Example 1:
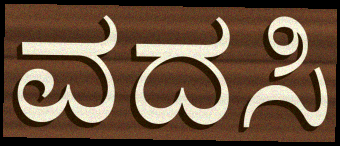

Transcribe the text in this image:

ವದಸಿ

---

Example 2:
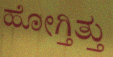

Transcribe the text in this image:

ಹೋಗ್ತಿತ್ತು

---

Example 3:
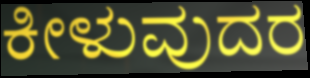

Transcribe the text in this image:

ಕೀಳುವುದರ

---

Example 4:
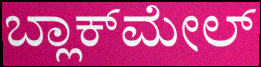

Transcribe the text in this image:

ಬ್ಲಾಕ್‌ಮೇಲ್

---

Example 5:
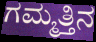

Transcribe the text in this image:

ಗಮ್ಮತ್ತಿನ